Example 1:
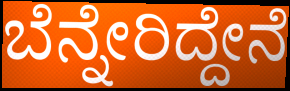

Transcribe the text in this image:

ಬೆನ್ನೇರಿದ್ದೇನೆ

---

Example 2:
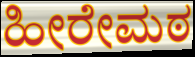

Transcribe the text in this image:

ಹೀರೇಮಠ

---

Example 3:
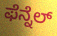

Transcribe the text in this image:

ಫೆನ್ನೆಲ್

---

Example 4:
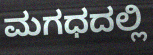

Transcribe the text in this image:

ಮಗಧದಲ್ಲಿ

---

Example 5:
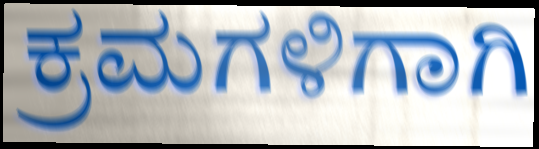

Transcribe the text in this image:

ಕ್ರಮಗಳಿಗಾಗಿ